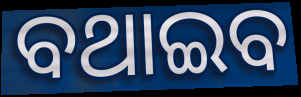
ବଥାଇବ